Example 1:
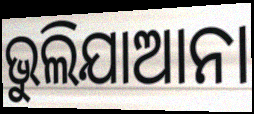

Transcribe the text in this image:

ଭୁଲିଯାଆନା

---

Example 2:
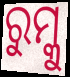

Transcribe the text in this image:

ରୁମ୍କୁ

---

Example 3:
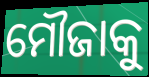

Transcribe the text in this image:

ମୌଜାକୁ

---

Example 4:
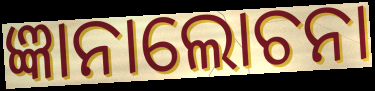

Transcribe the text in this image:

ଜ୍ଞାନାଲୋଚନା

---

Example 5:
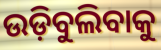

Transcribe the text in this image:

ଉଡ଼ିବୁଲିବାକୁ